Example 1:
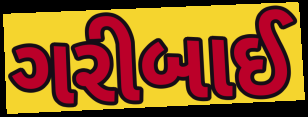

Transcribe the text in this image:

ગરીબાઈ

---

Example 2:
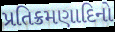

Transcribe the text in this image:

પ્રતિક્રમણાદિનો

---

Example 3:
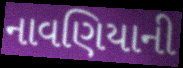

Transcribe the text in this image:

નાવણિયાની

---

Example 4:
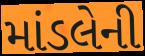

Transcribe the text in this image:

માંડલેની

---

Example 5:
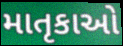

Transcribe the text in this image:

માતૃકાઓ